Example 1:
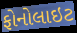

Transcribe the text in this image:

ફોનોલાઇટ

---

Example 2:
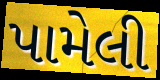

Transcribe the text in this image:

પામેલી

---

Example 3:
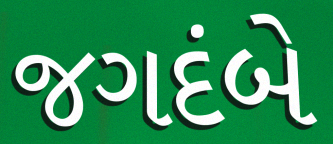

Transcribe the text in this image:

જગદંબે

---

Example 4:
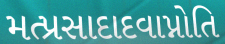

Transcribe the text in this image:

મત્પ્રસાદાદવાપ્નોતિ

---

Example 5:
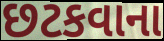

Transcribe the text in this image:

છટકવાના